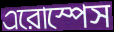
এরোস্পেস